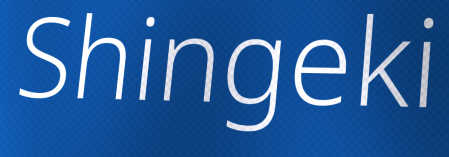
Shingeki